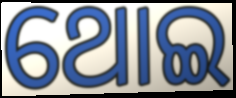
ଥୋଇ